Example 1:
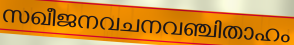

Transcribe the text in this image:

സഖീജനവചനവഞ്ചിതാഹം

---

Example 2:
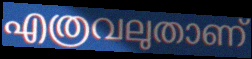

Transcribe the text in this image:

എത്രവലുതാണ്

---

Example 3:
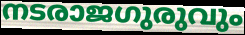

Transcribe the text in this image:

നടരാജഗുരുവും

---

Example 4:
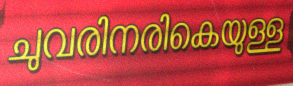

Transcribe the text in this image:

ചുവരിനരികെയുള്ള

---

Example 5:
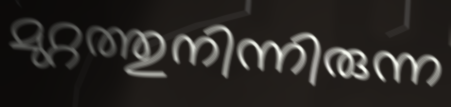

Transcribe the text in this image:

മുറ്റത്തുനിന്നിരുന്ന